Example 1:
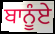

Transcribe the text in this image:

ਬਾਨੂੰਏ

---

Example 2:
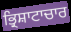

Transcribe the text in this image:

ਭ੍ਰਿਸ਼ਾਟਾਚਾਰ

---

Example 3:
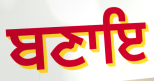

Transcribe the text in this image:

ਬਣਾਇ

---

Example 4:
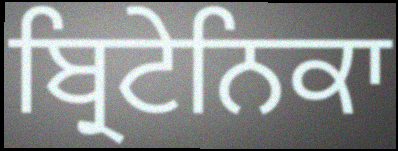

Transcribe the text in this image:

ਬ੍ਰਿਟੇਨਿਕਾ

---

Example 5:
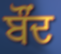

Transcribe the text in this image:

ਬੌਂਦ